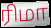
ரிமா